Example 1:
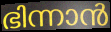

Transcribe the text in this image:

ഭിന്നാൻ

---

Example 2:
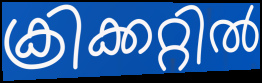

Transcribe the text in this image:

ക്രിക്കറ്റിൽ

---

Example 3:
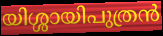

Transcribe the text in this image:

യിശ്ശായിപുത്രൻ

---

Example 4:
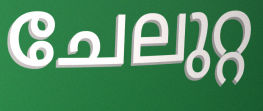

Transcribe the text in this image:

ചേലുറ്റ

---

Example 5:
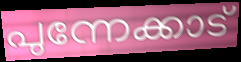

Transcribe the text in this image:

പുന്നേക്കാട്